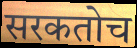
सरकतोच